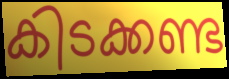
കിടക്കണ്ട